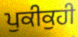
ਪੁਕੀਕੁਹੀ